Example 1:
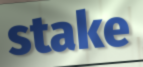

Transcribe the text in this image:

stake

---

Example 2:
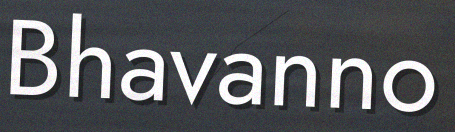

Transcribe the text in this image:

Bhavanno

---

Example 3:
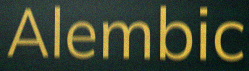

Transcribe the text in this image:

Alembic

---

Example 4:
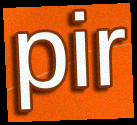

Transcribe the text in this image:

pir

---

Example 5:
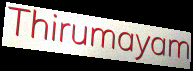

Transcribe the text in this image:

Thirumayam